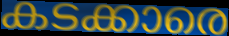
കടക്കാരെ